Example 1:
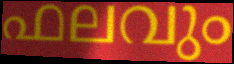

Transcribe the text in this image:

ഫലവും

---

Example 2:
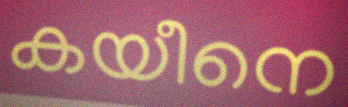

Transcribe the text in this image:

കയീനെ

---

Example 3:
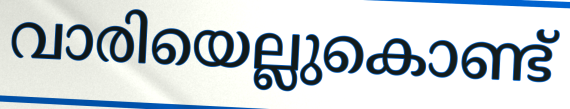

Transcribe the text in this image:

വാരിയെല്ലുകൊണ്ട്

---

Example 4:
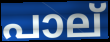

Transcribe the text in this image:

പാല്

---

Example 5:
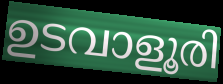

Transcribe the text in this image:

ഉടവാളൂരി